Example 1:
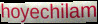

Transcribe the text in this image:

hoyechilam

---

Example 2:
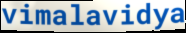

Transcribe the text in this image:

vimalavidya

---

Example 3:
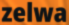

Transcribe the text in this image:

zelwa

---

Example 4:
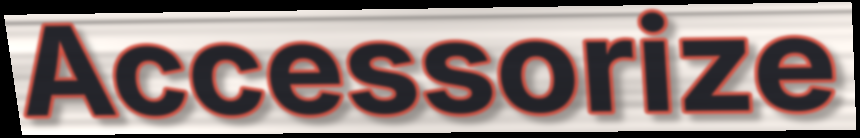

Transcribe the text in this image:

Accessorize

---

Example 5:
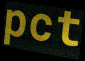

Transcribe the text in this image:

pct